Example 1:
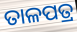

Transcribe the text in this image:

ତାଳପତ୍ର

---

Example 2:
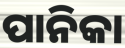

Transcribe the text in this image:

ପାନିକା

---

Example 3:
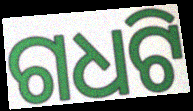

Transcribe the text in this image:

ଗଧଟି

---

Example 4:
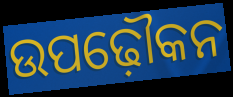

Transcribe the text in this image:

ଉପଢ଼ୌକନ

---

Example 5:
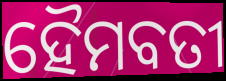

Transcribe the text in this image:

ହୈମବତୀ